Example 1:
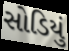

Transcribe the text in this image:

સોડિયું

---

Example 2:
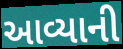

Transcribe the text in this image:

આવ્યાની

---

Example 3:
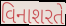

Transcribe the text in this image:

વિનાશરતે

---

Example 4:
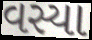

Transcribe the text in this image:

વસ્યા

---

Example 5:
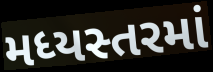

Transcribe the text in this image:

મધ્યસ્તરમાં